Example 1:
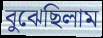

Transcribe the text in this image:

বুঝেছিলাম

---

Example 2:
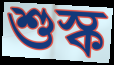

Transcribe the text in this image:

শুস্ক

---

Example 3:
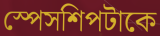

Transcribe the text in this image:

স্পেসশিপটাকে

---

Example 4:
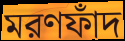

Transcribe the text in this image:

মরণফাঁদ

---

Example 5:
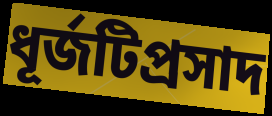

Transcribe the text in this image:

ধূর্জটিপ্রসাদ